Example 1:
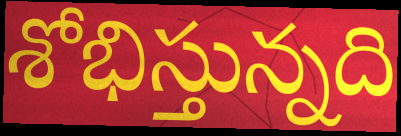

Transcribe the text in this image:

శోభిస్తున్నది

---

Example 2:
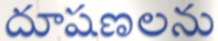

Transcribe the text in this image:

దూషణలను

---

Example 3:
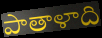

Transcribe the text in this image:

పాతాళాది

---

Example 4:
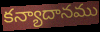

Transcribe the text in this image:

కన్యాదానము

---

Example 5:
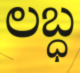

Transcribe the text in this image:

లబ్ధ